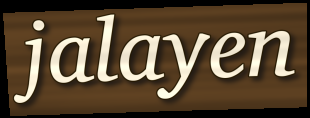
jalayen